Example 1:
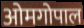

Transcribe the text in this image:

ओमगोपाल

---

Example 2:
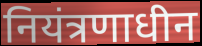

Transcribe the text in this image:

नियंत्रणाधीन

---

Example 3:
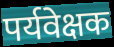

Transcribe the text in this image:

पर्यवेक्षक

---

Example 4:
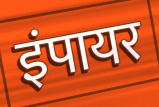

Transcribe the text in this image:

इंपायर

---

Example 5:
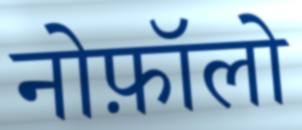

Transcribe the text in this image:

नोफ़ॉलो